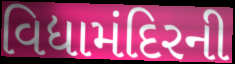
વિદ્યામંદિરની